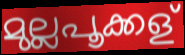
മുല്ലപൂക്കള്